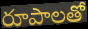
రూపాలతో